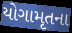
યોગામૃતના